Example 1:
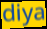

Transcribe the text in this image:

diya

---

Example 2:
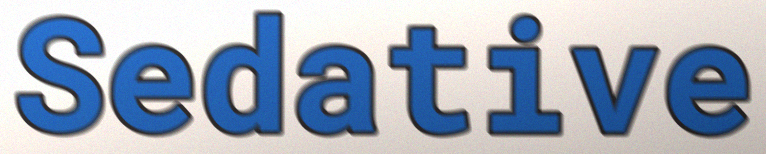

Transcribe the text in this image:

Sedative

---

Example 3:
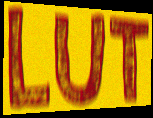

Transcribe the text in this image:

LUT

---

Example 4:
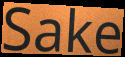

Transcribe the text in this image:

Sake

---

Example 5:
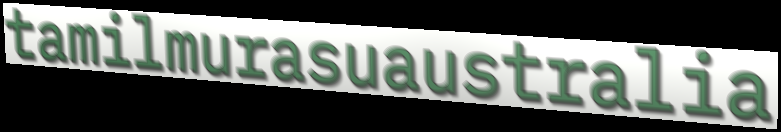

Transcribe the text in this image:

tamilmurasuaustralia